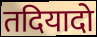
तदियादो